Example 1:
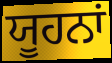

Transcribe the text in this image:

ਯੂਹਨਾਂ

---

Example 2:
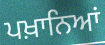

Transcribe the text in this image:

ਪਖ਼ਾਨਿਆਂ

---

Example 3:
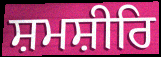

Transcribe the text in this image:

ਸ਼ਮਸ਼ੀਰਿ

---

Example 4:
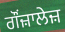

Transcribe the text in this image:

ਗੌਂਜ਼ਾਲੇਜ਼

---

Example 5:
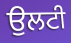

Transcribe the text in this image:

ਉਲਟੀ